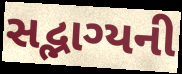
સદ્ભાગ્યની